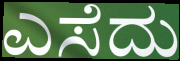
ಎಸೆದು